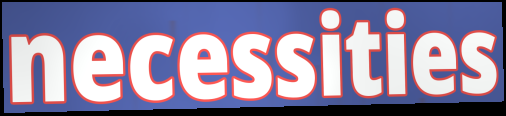
necessities